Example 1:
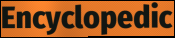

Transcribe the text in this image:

Encyclopedic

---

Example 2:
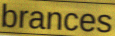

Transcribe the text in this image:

brances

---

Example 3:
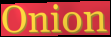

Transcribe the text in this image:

Onion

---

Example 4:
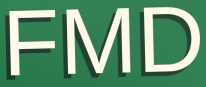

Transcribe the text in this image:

FMD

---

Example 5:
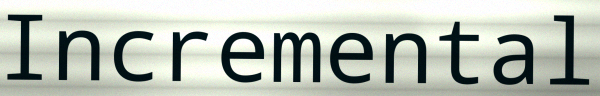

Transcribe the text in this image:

Incremental